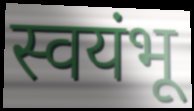
स्वयंभू